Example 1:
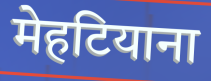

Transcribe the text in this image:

मेहटियाना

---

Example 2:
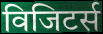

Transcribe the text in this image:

विजिटर्स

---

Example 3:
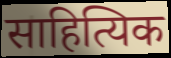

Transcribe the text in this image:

साहित्यिक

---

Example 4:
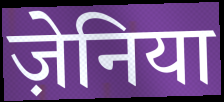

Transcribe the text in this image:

ज़ेनिया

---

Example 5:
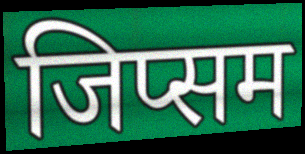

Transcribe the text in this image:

जिप्सम